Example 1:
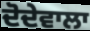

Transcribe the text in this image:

ਦੋਦੇਵਾਲਾ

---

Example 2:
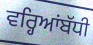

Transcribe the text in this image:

ਵਰ੍ਹਿਆਂਬੱਧੀ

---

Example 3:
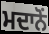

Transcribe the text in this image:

ਮਦਾਨੋਂ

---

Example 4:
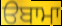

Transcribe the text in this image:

ੳਬਾਮਾ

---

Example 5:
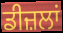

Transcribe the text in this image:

ਡੀਜ਼ਲਾਂ